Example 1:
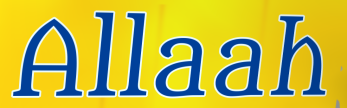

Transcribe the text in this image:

Allaah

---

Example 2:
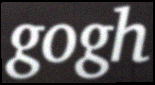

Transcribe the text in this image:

gogh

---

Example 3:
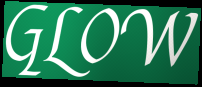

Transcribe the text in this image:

GLOW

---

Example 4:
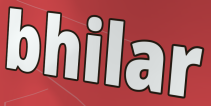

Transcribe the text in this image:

bhilar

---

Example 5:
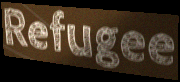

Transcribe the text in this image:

Refugee